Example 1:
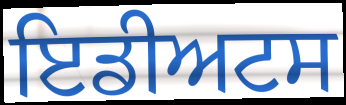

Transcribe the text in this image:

ਇਡੀਅਟਸ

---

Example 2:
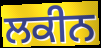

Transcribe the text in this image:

ਲਕੀਨ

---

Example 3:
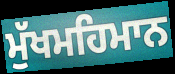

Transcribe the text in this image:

ਮੁੱਖਮਹਿਮਾਨ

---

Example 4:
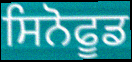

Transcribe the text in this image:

ਸਿਨੋਫੂਡ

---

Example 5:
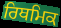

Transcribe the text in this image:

ਰਿਥਮਿਕ